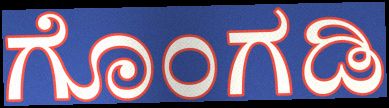
ಗೊಂಗಡಿ